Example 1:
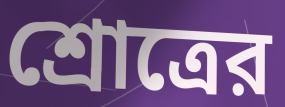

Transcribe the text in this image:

শ্রোত্রের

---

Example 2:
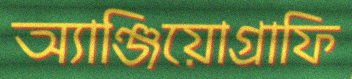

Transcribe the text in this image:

অ্যাঞ্জিয়োগ্রাফি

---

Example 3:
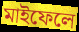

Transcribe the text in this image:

মাইফেলে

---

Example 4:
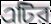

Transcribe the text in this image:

এটির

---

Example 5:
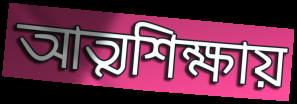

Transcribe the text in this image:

আত্মশিক্ষায়